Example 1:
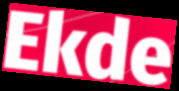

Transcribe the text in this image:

Ekde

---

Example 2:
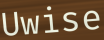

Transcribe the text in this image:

Uwise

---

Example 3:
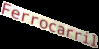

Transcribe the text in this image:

Ferrocarril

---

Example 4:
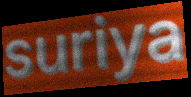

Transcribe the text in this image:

suriya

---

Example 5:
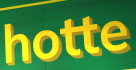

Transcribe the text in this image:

hotte